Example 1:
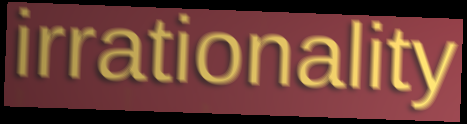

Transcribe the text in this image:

irrationality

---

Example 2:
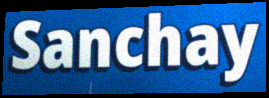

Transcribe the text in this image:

Sanchay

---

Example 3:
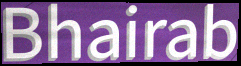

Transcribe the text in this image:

Bhairab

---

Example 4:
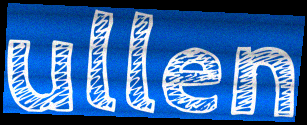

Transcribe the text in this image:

ullen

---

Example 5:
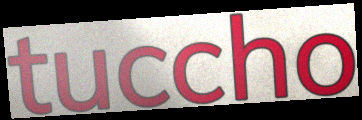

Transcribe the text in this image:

tuccho